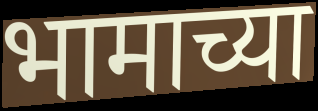
भामाच्या